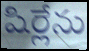
షిర్లేను